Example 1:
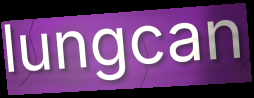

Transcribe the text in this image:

lungcan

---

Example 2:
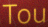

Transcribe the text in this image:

Tou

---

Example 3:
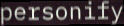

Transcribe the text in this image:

personify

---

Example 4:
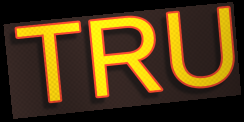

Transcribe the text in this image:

TRU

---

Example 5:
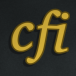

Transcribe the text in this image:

cfi